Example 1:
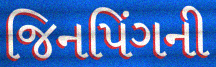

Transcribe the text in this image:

જિનપિંગની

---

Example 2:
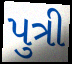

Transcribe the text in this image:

પુત્રી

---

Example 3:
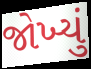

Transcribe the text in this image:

જોખ્યું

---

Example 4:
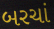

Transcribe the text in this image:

બરચાં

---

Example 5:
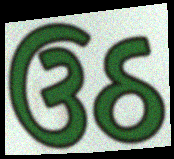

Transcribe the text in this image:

ઉઠ